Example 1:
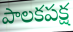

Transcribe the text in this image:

పాలకపక్ష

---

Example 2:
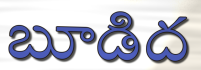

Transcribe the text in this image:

బూడిద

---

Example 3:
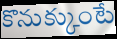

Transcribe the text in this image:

కొనుక్కుంటే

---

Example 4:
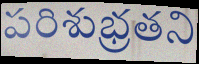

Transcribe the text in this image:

పరిశుభ్రతని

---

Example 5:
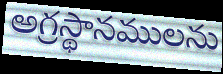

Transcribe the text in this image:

అగ్రస్థానములను